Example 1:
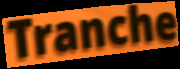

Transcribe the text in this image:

Tranche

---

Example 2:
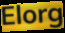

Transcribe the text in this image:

Elorg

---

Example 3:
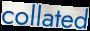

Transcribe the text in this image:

collated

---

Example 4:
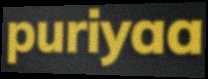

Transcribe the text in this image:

puriyaa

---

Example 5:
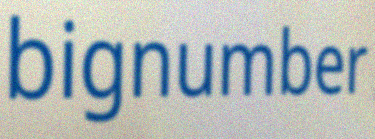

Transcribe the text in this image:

bignumber